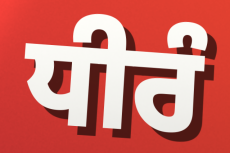
ਧੀਰੰ